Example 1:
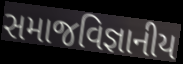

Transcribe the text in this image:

સમાજવિજ્ઞાનીય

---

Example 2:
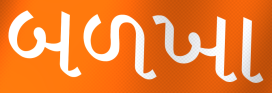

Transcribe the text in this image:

બળખા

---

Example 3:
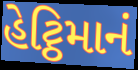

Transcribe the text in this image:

હેટ્ઠિમાનં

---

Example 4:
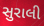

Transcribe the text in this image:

સુરાલી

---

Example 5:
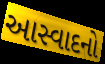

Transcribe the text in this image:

આસ્વાદનો